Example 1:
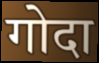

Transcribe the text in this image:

गोदा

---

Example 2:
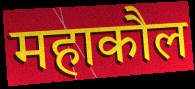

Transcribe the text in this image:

महाकौल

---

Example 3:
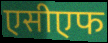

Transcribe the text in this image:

एसीएफ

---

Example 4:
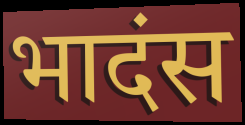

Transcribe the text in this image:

भादंस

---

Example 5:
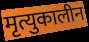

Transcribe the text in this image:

मृत्युकालीन